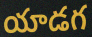
యాడగ